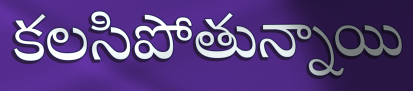
కలసిపోతున్నాయి